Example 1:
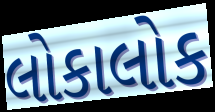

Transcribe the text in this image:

લોકાલોક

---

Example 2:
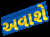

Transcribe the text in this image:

અવાશે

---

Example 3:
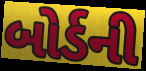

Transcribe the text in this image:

બોર્ડની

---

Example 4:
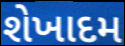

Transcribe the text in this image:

શેખાદમ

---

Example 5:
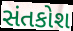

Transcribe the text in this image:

સંતકોશ